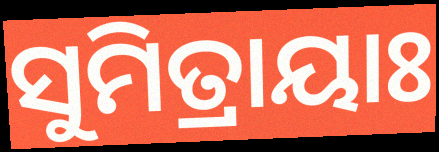
ସୁମିତ୍ରାୟାଃ